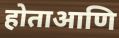
होताआणि